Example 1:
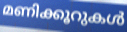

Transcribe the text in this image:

മണിക്കൂറുകൾ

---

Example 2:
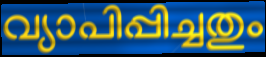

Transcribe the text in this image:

വ്യാപിപ്പിച്ചതും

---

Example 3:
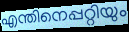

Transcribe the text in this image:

എന്തിനെപ്പറ്റിയും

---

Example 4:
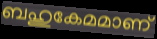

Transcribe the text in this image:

ബഹുകേമമാണ്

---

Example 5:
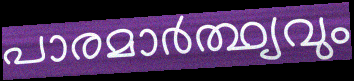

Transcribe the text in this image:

പാരമാർത്ഥ്യവും